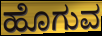
ಹೊಗುವ